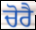
ਚੋਰੈ